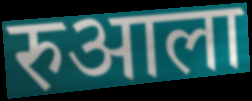
रुआला